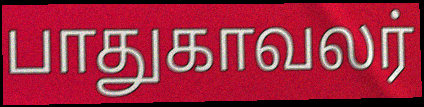
பாதுகாவலர்